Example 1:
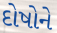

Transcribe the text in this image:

દોષોને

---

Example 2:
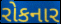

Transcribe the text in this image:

રોકનાર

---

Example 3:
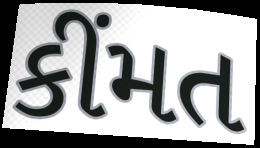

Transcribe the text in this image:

કીંમત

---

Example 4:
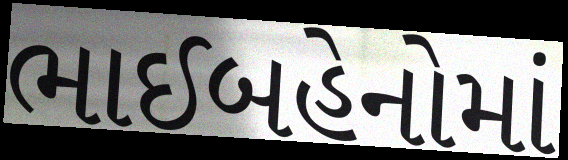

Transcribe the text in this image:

ભાઈબહેનોમાં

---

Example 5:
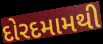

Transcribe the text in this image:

દોરદમામથી